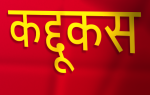
कद्दूकस